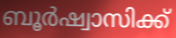
ബൂർഷ്വാസിക്ക്